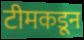
टीमकडून